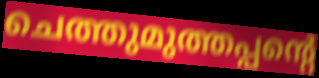
ചെത്തുമുത്തപ്പന്റെ